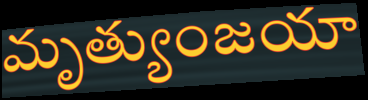
మృత్యుంజయా